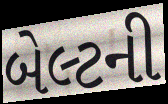
બેલ્ટની